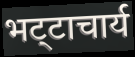
भट्‍टाचार्य